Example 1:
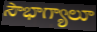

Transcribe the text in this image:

సౌభాగ్యాలూ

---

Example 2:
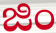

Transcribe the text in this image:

జిం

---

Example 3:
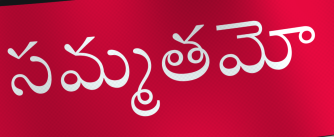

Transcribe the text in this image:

సమ్మతమో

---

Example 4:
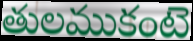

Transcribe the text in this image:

తులముకంటె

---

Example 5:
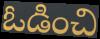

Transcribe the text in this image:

ఓడించి